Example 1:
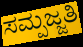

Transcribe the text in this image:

ಸಮ್ಪಜ್ಜತಿ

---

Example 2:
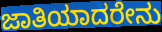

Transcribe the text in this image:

ಜಾತಿಯಾದರೇನು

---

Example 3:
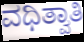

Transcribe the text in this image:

ವಧಿತ್ವಾತಿ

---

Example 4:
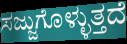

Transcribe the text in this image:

ಸಜ್ಜುಗೊಳ್ಳುತ್ತದೆ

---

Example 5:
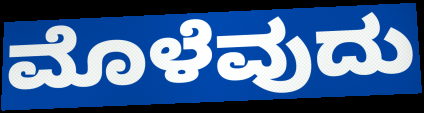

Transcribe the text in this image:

ಮೊಳೆವುದು